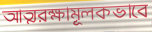
আত্মরক্ষামূলকভাবে